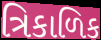
ત્રિકાળિક